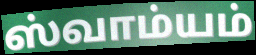
ஸ்வாம்யம்